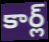
కార్ల్